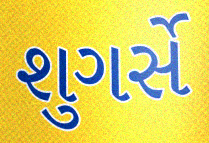
શુગર્સે